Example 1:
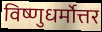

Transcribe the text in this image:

विष्णुधर्मोत्तर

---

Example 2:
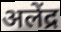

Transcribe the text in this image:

अलेंद्र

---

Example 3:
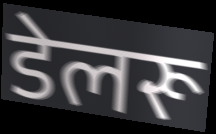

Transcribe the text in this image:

डेलरू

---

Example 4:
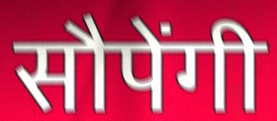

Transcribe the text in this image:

सौपेंगी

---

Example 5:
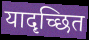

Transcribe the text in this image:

यादृच्छित